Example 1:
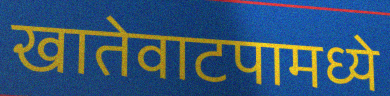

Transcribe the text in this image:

खातेवाटपामध्ये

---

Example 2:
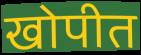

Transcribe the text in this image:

खोपीत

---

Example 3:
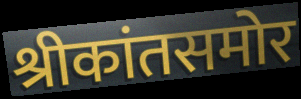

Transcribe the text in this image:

श्रीकांतसमोर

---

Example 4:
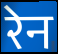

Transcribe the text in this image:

रेन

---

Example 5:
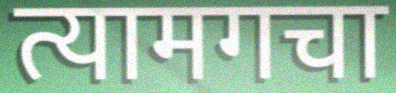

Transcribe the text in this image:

त्यामगचा